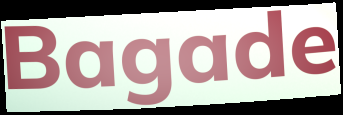
Bagade